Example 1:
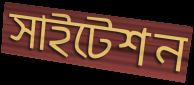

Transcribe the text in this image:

সাইটেশন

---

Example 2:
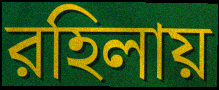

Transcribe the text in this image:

রহিলায়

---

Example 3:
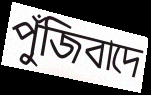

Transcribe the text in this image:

পুঁজিবাদে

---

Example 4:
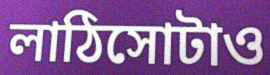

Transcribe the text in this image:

লাঠিসোটাও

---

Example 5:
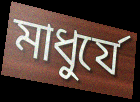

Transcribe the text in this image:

মাধুর্যে